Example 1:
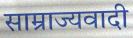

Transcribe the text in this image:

साम्राज्यवादी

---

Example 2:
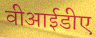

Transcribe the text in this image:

वीआईडीए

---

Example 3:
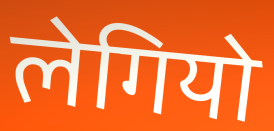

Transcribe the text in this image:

लेगियो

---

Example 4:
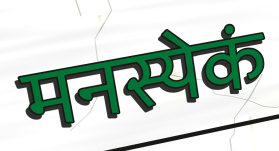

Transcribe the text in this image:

मनस्येकं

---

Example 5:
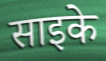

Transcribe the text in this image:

साइके